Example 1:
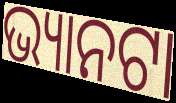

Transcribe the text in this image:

ଭ୍ୟାନଟା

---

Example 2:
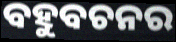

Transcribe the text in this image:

ବହୁବଚନର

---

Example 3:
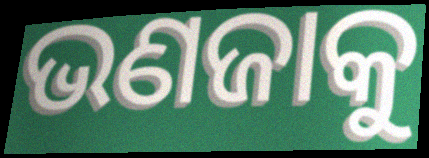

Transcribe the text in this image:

ଭଣଜାକୁ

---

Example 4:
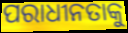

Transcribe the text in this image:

ପରାଧୀନତାକୁ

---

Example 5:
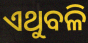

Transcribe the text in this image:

ଏଥୁବଳି